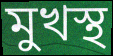
মুখস্থ